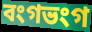
বংগভংগ